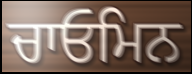
ਚਾਓਮਿਨ